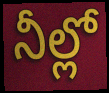
నీల్లో